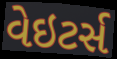
વેઇટર્સ